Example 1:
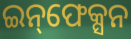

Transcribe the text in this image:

ଇନ୍‌ଫେକ୍ସନ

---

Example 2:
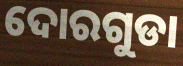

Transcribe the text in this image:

ଦୋରଗୁଡା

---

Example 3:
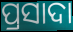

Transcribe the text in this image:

ପ୍ରସାଦା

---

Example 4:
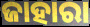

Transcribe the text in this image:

ଜାହାରା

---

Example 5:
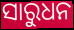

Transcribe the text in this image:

ସାରୁଧନ